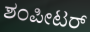
ಶಂಪೀಟರ್